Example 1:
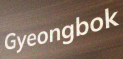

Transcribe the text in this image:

Gyeongbok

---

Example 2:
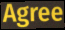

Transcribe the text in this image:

Agree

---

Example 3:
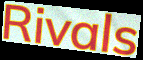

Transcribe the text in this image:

Rivals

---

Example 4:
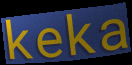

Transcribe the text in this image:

keka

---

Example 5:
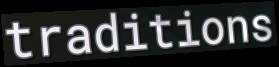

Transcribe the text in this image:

traditions